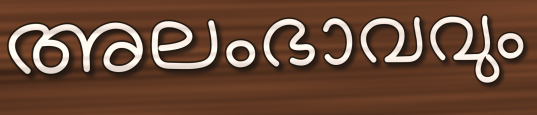
അലംഭാവവും